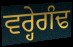
ਵਰ੍ਹੇਗੰਢ